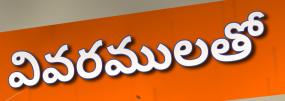
వివరములతో